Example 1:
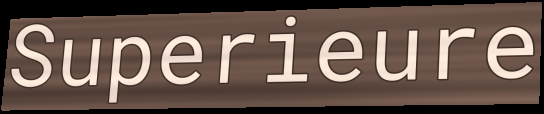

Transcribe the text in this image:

Superieure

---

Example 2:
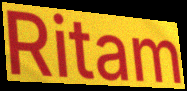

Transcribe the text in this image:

Ritam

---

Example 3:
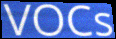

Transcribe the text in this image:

VOCs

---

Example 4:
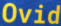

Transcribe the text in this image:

Ovid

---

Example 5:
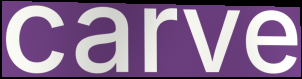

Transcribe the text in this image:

carve